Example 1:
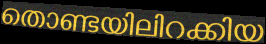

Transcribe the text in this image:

തൊണ്ടയിലിറക്കിയ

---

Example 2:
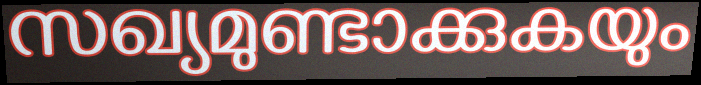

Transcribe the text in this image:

സഖ്യമുണ്ടാക്കുകയും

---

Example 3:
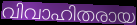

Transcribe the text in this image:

വിവാഹിതരായ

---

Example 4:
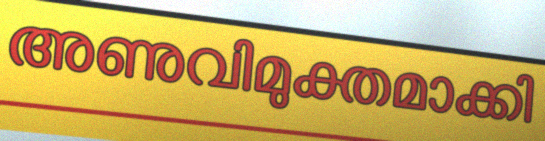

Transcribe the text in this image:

അണുവിമുക്തമാക്കി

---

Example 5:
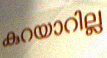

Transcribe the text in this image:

കുറയാറില്ല